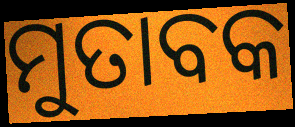
ମୁତାବକ